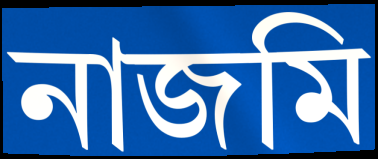
নাজমি